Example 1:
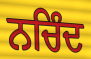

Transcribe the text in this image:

ਨਚਿੰਦ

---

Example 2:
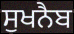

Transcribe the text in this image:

ਸੁਖਨੈਬ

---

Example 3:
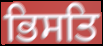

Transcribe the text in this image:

ਭਿਸਤਿ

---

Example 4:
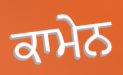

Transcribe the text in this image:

ਕਾਮੇਨ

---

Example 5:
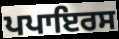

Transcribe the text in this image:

ਪਪਾਇਰਸ